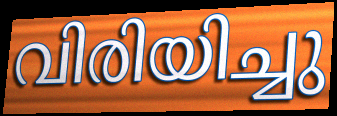
വിരിയിച്ചു